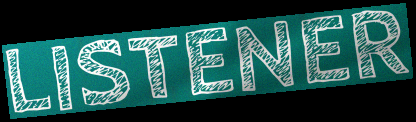
LISTENER